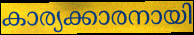
കാര്യക്കാരനായി